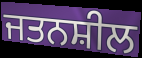
ਜਤਨਸ਼ੀਲ